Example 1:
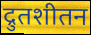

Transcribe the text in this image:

द्रुतशीतन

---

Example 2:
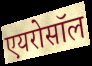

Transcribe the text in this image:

एयरोसॉल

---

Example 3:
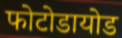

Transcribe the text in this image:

फोटोडायोड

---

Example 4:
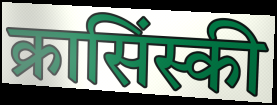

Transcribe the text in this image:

क्रासिंस्की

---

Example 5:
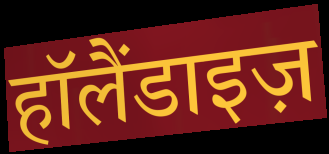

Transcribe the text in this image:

हॉलैंडाइज़